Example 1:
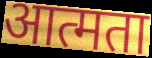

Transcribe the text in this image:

आत्मता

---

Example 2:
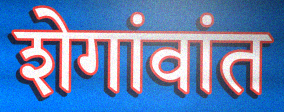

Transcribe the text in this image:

शेगांवांत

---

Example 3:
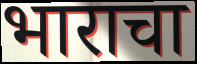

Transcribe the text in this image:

भाराचा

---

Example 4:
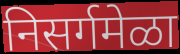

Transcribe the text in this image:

निसर्गमेळा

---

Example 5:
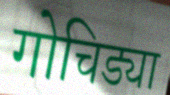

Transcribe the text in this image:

गोचिड्या